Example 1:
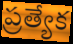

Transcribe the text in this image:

ప్రత్యేక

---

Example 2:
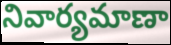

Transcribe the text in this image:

నివార్యమాణా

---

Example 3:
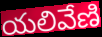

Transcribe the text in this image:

యలివేణి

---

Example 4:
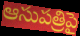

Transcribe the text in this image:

ఆసుపత్రిపై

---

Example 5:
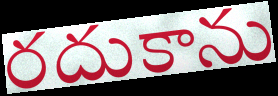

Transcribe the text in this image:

రదుకాను